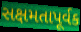
સક્ષમતાપૂર્વક